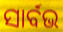
ସାର୍ବଭ